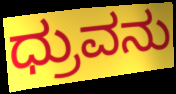
ಧ್ರುವನು